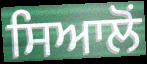
ਸਿਆਲੋਂ